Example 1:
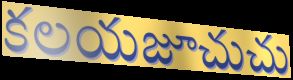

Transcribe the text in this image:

కలయజూచుచు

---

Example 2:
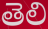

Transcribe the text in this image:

తెలి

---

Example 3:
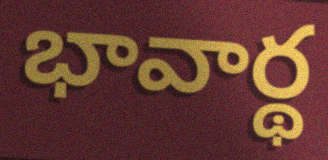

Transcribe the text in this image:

భావార్థ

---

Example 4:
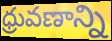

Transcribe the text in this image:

ధ్రువణాన్ని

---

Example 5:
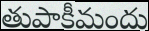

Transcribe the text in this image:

తుపాకీమందు